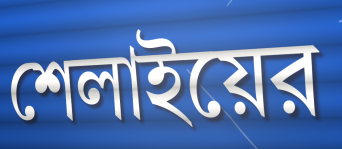
শেলাইয়ের